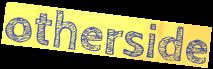
otherside